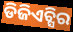
ଡିଜିଏଚ୍ସିର